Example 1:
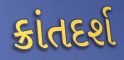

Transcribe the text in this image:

ક્રાંતદર્શ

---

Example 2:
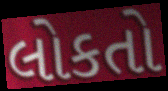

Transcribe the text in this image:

લોકતો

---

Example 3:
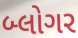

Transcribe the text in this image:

બ્લોગર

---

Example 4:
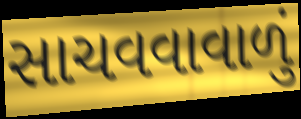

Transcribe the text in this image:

સાચવવાવાળું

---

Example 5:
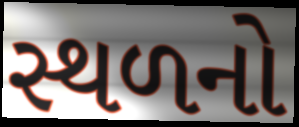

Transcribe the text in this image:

સ્થળનો